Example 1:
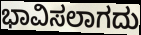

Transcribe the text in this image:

ಭಾವಿಸಲಾಗದು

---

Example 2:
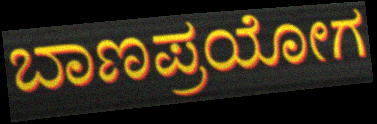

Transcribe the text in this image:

ಬಾಣಪ್ರಯೋಗ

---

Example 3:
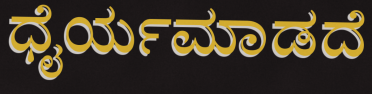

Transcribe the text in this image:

ಧೈರ್ಯಮಾಡದೆ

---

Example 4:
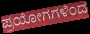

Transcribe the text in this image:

ಪ್ರಯೋಗಗಳಿಂದ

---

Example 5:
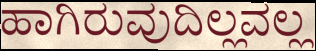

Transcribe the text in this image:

ಹಾಗಿರುವುದಿಲ್ಲವಲ್ಲ